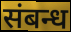
संबन्ध